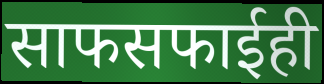
साफसफाईही